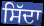
ਸਿੱਦਾ